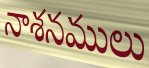
నాశనములు